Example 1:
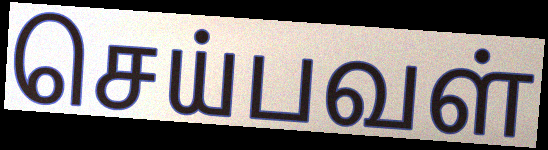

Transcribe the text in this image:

செய்பவள்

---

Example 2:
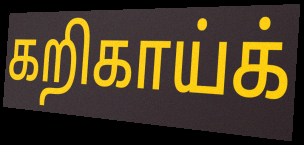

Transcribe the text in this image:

கறிகாய்க்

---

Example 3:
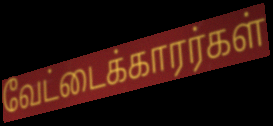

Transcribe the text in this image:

வேட்டைக்காரர்கள்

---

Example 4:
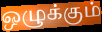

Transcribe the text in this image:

ஒழுக்கும்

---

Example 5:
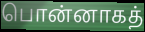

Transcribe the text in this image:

பொன்னாகத்